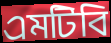
এমটিবি